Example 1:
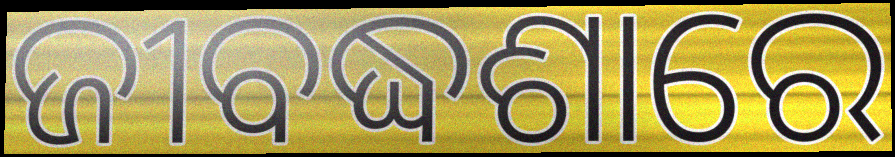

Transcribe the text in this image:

ଜୀବଦ୍ଧଶାରେ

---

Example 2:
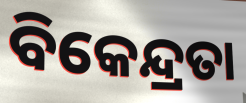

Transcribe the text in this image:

ବିକେନ୍ଦ୍ରତା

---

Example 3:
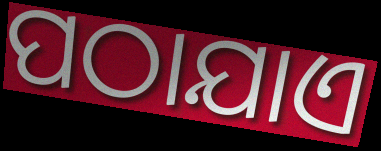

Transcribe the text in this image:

ପଠାଯାଏ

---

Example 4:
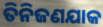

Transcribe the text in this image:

ତିନିଜଣଯାକ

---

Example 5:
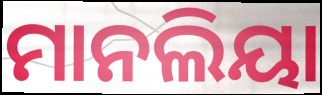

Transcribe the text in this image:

ମାନଲିୟା